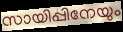
സായിപ്പിനേയും